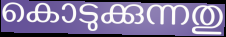
കൊടുക്കുന്നതു